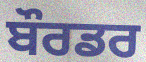
ਬੌਰਡਰ